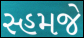
સ્હમજે